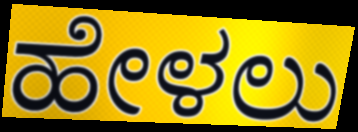
ಹೇಳಲು